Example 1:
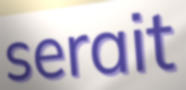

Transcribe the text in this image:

serait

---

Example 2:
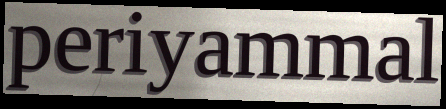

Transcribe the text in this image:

periyammal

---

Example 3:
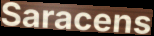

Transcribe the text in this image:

Saracens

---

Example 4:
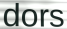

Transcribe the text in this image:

dors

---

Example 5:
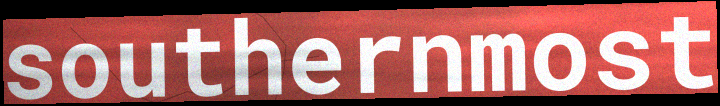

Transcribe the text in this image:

southernmost